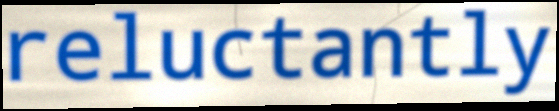
reluctantly